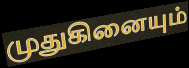
முதுகினையும்